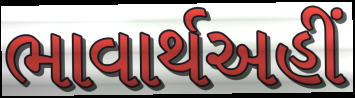
ભાવાર્થઅહીં